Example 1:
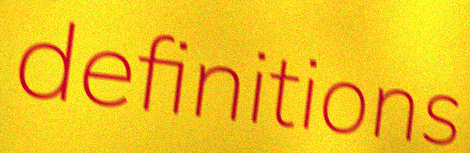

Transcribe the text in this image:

definitions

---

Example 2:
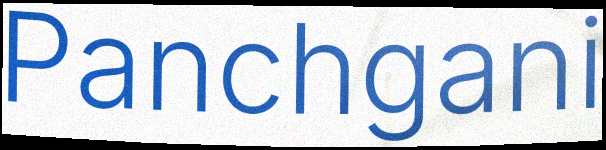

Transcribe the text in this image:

Panchgani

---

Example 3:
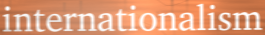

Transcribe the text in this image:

internationalism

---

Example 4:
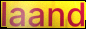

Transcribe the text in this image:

laand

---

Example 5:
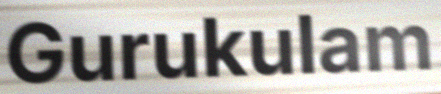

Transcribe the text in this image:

Gurukulam